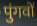
पुंगवों